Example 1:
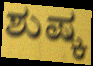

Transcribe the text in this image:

ಶುಷ್ಕ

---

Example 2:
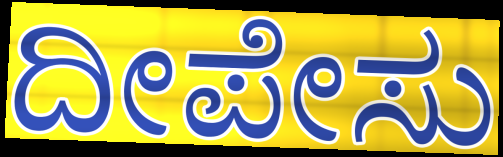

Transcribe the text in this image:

ದೀಪೇಸು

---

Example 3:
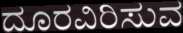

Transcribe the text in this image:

ದೂರವಿರಿಸುವ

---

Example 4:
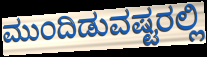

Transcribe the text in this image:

ಮುಂದಿಡುವಷ್ಟರಲ್ಲಿ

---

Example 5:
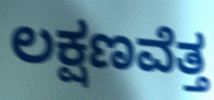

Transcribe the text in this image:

ಲಕ್ಷಣವೆತ್ತ